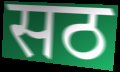
सठ